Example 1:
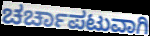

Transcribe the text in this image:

ಚರ್ಚಾಪಟುವಾಗಿ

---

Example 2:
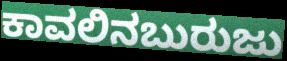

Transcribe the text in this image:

ಕಾವಲಿನಬುರುಜು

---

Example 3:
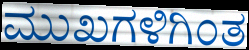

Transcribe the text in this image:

ಮುಖಗಳಿಗಿಂತ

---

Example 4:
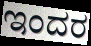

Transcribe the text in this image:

ಇಂದರ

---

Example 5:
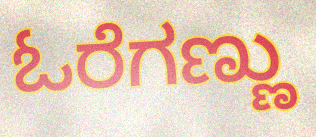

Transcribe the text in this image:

ಓರೆಗಣ್ಣು